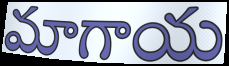
మాగాయ